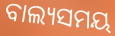
ବାଲ୍ୟସମୟ